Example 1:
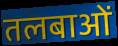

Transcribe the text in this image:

तलबाओं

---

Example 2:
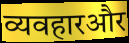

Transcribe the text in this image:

व्यवहारऔर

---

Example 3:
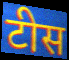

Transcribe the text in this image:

टीस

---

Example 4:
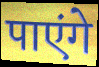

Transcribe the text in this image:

पाएंगे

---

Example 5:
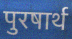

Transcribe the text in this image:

पुरषार्थ